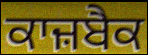
ਕਾਜ਼ਬੈਕ